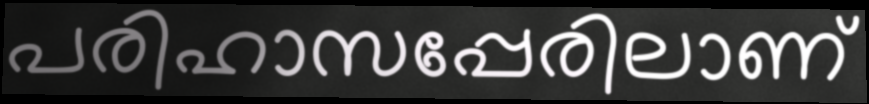
പരിഹാസപ്പേരിലാണ്